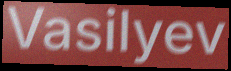
Vasilyev